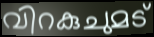
വിറകുചുമട്